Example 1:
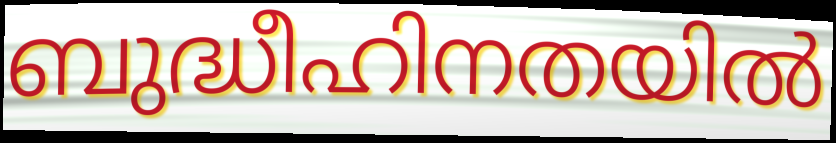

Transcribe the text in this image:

ബുദ്ധീഹിനതയിൽ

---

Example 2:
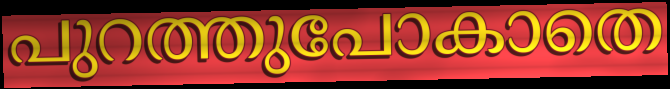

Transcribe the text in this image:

പുറത്തുപോകാതെ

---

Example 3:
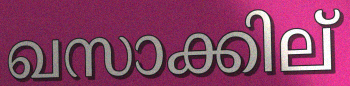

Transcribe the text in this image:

ഖസാക്കില്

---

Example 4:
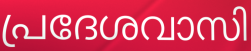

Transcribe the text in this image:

പ്രദേശവാസി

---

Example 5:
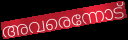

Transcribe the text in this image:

അവരെന്നോട്